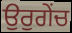
ਉਰੁਗੇਂਚ